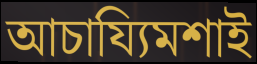
আচায্যিমশাই